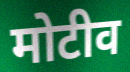
मोटीव